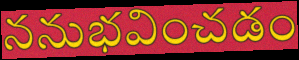
ననుభవించడం